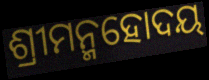
ଶ୍ରୀମନ୍ମହୋଦୟ